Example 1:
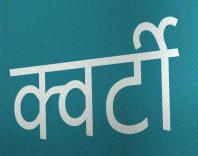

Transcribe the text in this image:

क्वर्टी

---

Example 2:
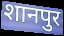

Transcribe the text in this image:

शानपुर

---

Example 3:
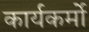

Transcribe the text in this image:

कार्यकर्मो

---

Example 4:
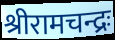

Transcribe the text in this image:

श्रीरामचन्द्रः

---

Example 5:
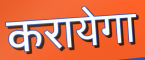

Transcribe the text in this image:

करायेगा